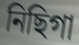
নিছিগা